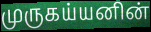
முருகய்யனின்